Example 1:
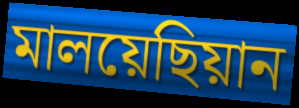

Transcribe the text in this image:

মালয়েছিয়ান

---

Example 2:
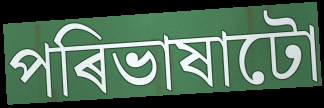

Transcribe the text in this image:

পৰিভাষাটো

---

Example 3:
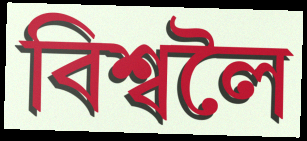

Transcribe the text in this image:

বিশ্বলৈ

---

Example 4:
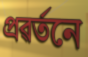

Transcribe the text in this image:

প্ৰৱৰ্তনে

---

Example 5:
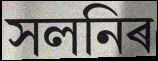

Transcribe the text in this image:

সলনিৰ